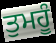
ਤੁਮਹੂੰ